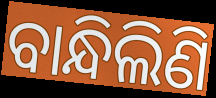
ବାନ୍ଧିଲିଣି